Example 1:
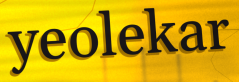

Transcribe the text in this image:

yeolekar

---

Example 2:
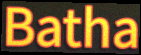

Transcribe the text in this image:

Batha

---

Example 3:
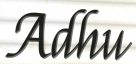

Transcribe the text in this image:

Adhu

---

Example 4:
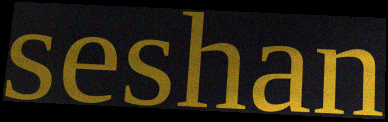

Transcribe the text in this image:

seshan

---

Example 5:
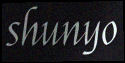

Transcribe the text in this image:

shunyo